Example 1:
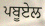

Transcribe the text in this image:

ਪਬੂਏਲ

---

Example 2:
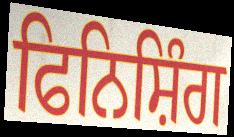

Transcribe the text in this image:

ਫਿਨਿਸ਼ਿੰਗ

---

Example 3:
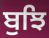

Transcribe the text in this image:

ਬੁਝਿ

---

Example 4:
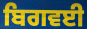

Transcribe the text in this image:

ਬਿਗਵਈ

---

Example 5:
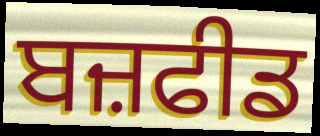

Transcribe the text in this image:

ਬਜ਼ਫੀਡ